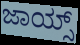
ಜಾಯ್ಸ್